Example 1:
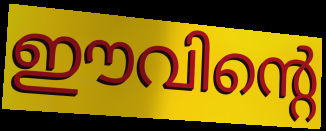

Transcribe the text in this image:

ഈവിന്റെ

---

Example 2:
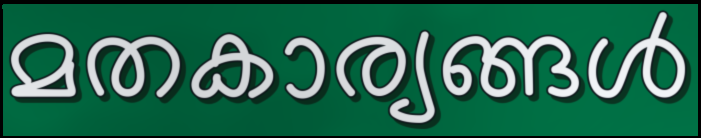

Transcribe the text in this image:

മതകാര്യങ്ങൾ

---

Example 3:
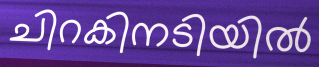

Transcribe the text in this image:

ചിറകിനടിയിൽ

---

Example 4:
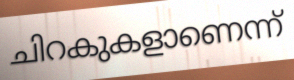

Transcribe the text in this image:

ചിറകുകളാണെന്ന്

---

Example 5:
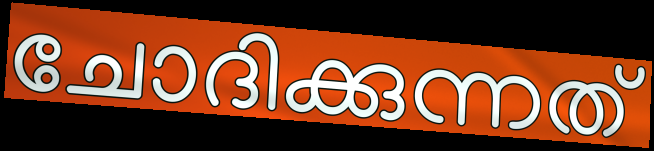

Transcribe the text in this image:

ചോദിക്കുന്നത്